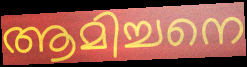
ആമിച്ചനെ